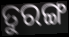
ତୁରଙ୍ଗ